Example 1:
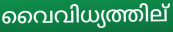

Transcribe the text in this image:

വൈവിധ്യത്തില്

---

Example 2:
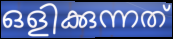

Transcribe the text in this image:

ഒളിക്കുന്നത്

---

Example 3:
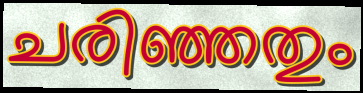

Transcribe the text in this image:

ചരിഞ്ഞതും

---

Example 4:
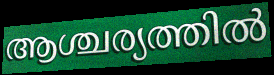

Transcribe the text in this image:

ആശ്ചര്യത്തിൽ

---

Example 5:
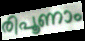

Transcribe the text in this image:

രിപൂണാം